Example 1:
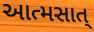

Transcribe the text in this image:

આત્મસાત્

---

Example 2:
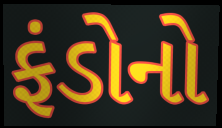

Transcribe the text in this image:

ફંડોનો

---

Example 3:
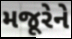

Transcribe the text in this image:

મજૂરેને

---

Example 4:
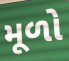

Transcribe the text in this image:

મૂળો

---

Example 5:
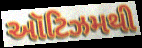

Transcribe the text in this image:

ઑટિઝમથી